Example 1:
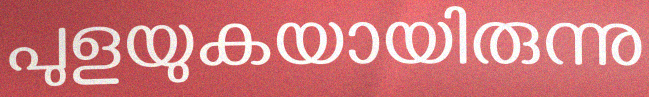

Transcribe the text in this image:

പുളയുകയായിരുന്നു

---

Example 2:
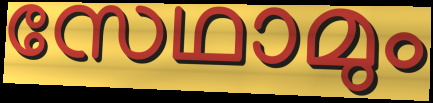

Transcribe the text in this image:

സേഥാമും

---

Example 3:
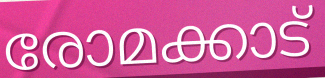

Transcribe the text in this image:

രോമക്കാട്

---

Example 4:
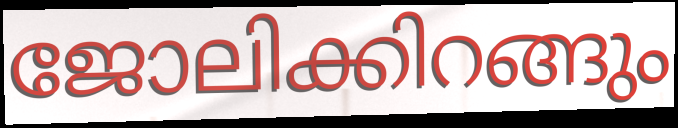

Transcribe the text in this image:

ജോലിക്കിറങ്ങും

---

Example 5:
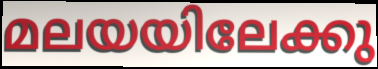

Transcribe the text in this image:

മലയയിലേക്കു